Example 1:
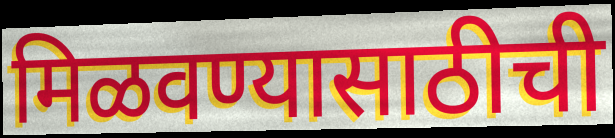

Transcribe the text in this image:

मिळवण्यासाठीची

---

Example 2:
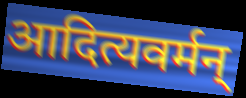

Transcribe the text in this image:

आदित्यवर्मन्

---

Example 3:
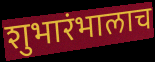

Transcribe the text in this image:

शुभारंभालाच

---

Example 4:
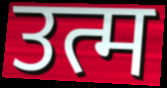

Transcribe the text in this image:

उत्म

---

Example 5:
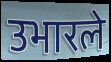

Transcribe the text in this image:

उभारले